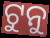
ଟୁନୁ